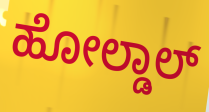
ಹೋಲ್ಡಾಲ್